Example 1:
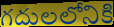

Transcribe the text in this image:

గదులలోనికి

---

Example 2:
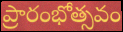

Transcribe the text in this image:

ప్రారంభోత్సవం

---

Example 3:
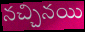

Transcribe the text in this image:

నచ్చినయి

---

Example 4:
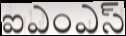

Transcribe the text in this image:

ఐఎంఎస్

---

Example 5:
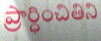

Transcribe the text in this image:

ప్రార్ధించితిని